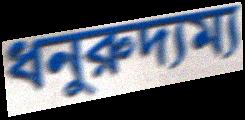
ধনুরুদ্যম্য